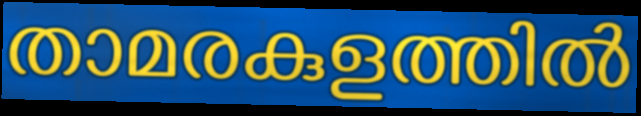
താമരകുളത്തിൽ